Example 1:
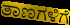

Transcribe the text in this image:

ತಾಣಗಳಿಗೆ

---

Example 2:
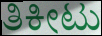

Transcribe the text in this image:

ತಿಕೀಟು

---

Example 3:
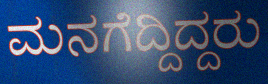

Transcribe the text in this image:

ಮನಗೆದ್ದಿದ್ದರು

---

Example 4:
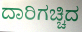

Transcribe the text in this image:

ದಾರಿಗಚ್ಚಿದ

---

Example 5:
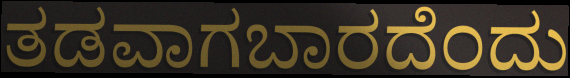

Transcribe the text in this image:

ತಡವಾಗಬಾರದೆಂದು